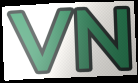
VN